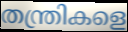
തന്ത്രികളെ